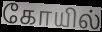
கோயில்